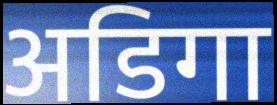
अडिगा